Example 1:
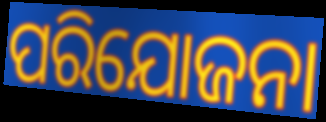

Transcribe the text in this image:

ପରିଯୋଜନା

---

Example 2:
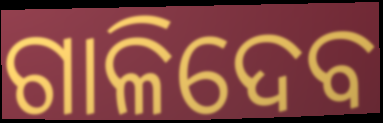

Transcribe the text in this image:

ଗାଳିଦେବ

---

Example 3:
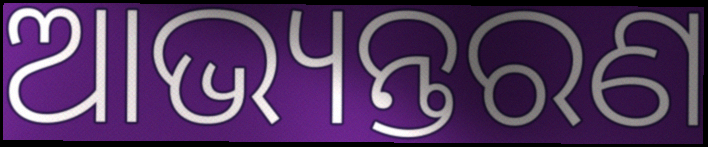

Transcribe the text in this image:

ଆଭ୍ୟନ୍ତରଣ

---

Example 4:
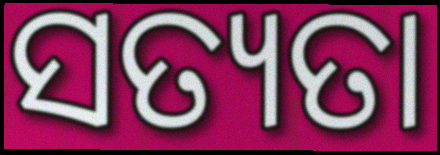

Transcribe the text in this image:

ସତ୍ୟତା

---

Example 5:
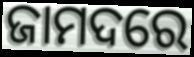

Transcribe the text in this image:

ଜାମଦରେ